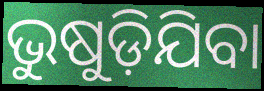
ଭୁଷୁଡ଼ିଯିବା